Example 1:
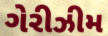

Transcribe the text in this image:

ગેરીઝીમ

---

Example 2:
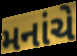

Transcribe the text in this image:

મનાંચે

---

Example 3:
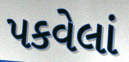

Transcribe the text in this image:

પકવેલાં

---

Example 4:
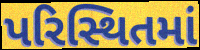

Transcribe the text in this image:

પરિસ્થિતમાં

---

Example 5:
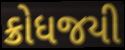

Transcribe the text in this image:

ક્રોધજયી